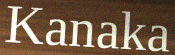
Kanaka